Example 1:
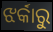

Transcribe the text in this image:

ଝର୍କାରୁ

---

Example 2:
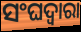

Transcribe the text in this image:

ସଂଘଦ୍ୱାରା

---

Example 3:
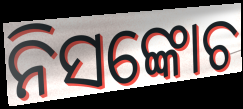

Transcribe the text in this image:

ନିସଙ୍କୋଚ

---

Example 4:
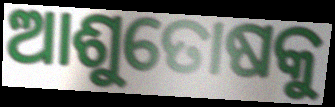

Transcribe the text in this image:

ଆଶୁତୋଷକୁ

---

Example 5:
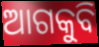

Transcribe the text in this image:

ଆଗକୁବି